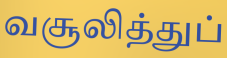
வசூலித்துப்